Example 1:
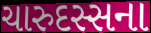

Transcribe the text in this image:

ચારુદસ્સના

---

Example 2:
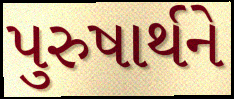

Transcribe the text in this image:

પુરુષાર્થને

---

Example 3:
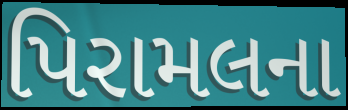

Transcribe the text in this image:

પિરામલના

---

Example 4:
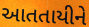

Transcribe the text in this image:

આતતાયીને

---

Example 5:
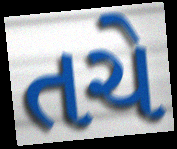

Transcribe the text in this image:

તચે